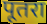
पूतरा